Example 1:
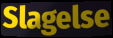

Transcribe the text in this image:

Slagelse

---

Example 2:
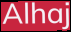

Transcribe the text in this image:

Alhaj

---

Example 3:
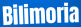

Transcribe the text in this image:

Bilimoria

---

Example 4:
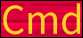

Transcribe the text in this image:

Cmd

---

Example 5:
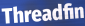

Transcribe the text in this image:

Threadfin